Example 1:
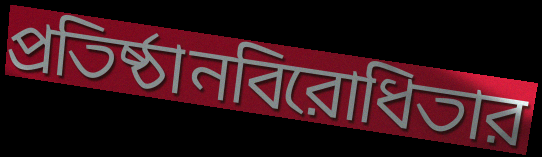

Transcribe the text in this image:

প্রতিষ্ঠানবিরোধিতার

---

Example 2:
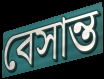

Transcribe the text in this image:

বেসান্ত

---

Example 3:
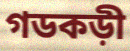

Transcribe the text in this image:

গডকড়ী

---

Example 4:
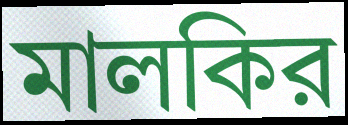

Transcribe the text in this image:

মালকির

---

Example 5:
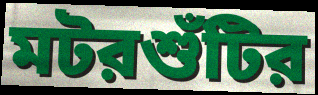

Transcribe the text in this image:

মটরশুঁটির